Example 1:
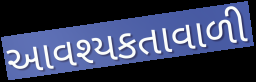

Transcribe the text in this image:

આવશ્યકતાવાળી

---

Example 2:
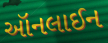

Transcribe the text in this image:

ઑનલાઈન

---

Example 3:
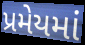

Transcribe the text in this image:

પ્રમેયમાં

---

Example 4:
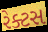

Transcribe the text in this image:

રેક્ટસ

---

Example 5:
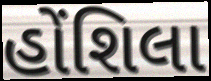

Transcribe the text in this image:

હોંશિલા